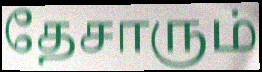
தேசாரும்